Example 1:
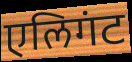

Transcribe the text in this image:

एलिगंट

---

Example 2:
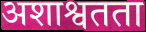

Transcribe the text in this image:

अशाश्वतता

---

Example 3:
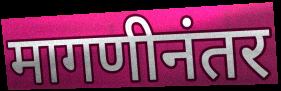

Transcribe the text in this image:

मागणीनंतर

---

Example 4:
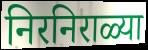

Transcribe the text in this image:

निरनिराळ्या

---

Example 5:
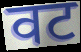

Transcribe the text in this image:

वट